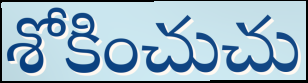
శోకించుచు